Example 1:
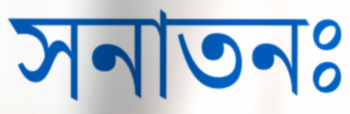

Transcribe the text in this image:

সনাতনঃ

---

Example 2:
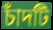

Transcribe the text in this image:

চাঁদটি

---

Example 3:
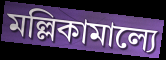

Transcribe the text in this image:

মল্লিকামাল্যে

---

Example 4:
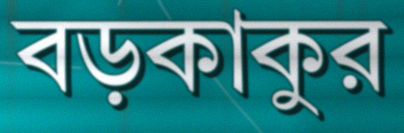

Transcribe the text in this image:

বড়কাকুর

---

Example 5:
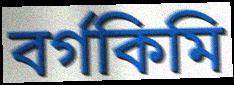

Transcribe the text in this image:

বর্গকিমি